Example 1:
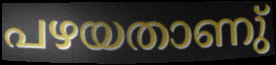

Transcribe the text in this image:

പഴയതാണു്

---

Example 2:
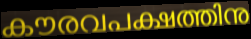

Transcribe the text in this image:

കൗരവപക്ഷത്തിനു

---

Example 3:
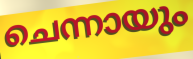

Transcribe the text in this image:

ചെന്നായും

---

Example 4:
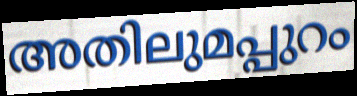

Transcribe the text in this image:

അതിലുമപ്പുറം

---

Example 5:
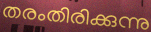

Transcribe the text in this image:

തരംതിരിക്കുന്നു